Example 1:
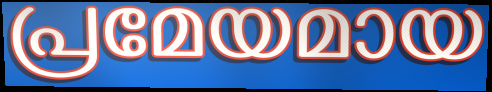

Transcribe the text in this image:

പ്രമേയമായ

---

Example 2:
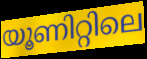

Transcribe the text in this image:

യൂണിറ്റിലെ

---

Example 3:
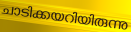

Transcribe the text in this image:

ചാടിക്കയറിയിരുന്നു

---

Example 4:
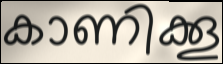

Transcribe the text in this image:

കാണിക്കൂ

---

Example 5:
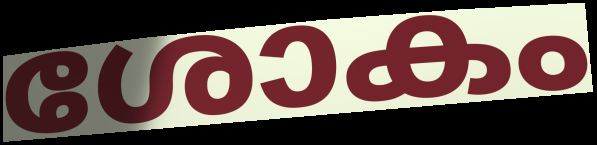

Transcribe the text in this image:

ശോകം